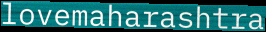
lovemaharashtra